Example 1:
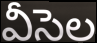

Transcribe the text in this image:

వీసెల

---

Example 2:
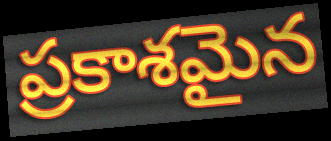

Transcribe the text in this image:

ప్రకాశమైన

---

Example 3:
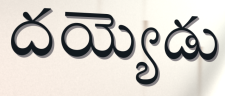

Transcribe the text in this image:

దయ్యెడు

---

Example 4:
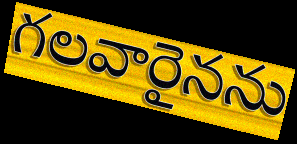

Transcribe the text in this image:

గలవారైనను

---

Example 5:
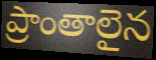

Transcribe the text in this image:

ప్రాంతాలైన